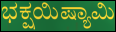
ಭಕ್ಷಯಿಷ್ಯಾಮಿ